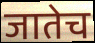
जातेच